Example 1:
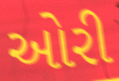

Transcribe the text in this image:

ઓરી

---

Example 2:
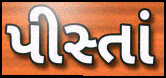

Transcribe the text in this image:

પીસ્તાં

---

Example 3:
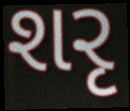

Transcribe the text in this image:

શરૃ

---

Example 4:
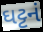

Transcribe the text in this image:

ઘટ્ટનં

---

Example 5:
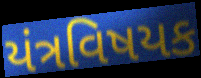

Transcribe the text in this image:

યંત્રવિષયક